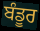
ਬੰਡੂਰ